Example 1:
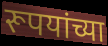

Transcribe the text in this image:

रूपयांच्या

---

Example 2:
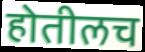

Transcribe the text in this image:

होतीलच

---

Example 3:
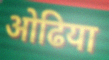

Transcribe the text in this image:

ओढिया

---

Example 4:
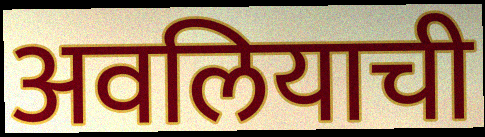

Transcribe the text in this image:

अवलियाची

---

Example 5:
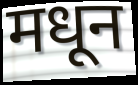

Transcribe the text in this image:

मधून